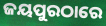
ଜୟପୁରଠାରେ